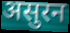
असुरन